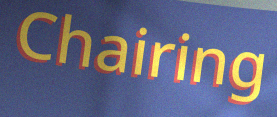
Chairing